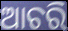
ଆଚରି